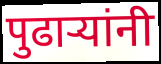
पुढाऱ्यांनी